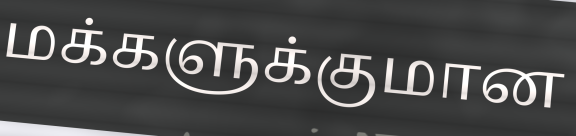
மக்களுக்குமான